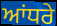
ਆਂਧਰੇ